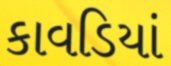
કાવડિયાં